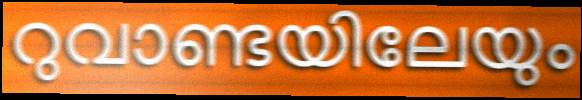
റുവാണ്ടയിലേയും